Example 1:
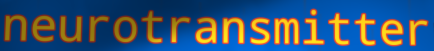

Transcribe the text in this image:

neurotransmitter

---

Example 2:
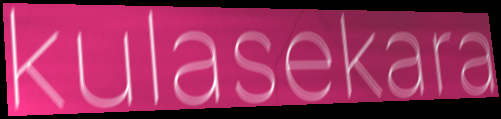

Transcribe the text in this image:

kulasekara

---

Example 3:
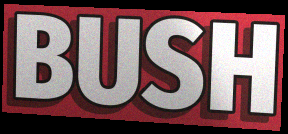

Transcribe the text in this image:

BUSH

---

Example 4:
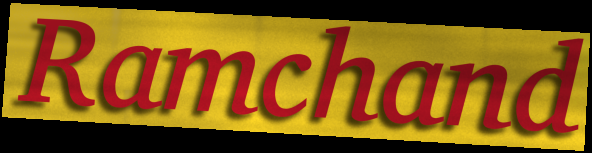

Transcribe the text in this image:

Ramchand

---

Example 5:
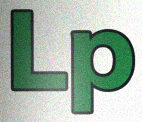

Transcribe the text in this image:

Lp